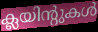
ക്ലയിന്റുകൾ